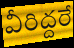
వీరిద్దరే